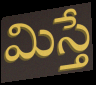
మిస్తే